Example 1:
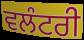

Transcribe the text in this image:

ਵਲੰਟਰੀ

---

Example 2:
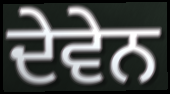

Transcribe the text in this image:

ਦੇਵੇਨ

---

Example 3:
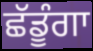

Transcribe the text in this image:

ਛੱਡੂੰਗਾ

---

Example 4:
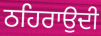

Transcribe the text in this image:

ਠਹਿਰਾਉਦੀ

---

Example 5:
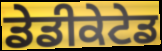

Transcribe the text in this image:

ਡੇਡੀਕੇਟੇਡ